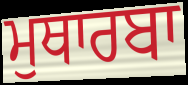
ਮੁਥਾਰਬਾ